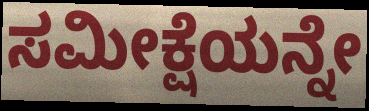
ಸಮೀಕ್ಷೆಯನ್ನೇ